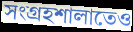
সংগ্রহশালাতেও